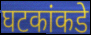
घटकांकडे